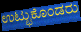
ಉಟ್ಟುಕೊಂಡರು